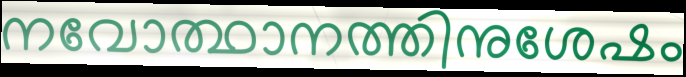
നവോത്ഥാനത്തിനുശേഷം